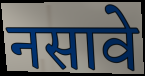
नसावे